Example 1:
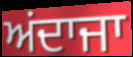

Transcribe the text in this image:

ਅਂਦਾਜਾ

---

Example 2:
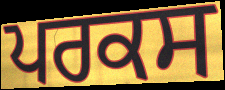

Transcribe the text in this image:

ਪਰਕਸ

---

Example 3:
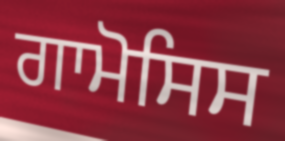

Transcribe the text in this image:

ਗਾਮੋਸਿਸ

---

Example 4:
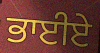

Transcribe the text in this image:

ਭਾਈਏ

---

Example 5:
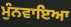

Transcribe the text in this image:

ਮੁੰਨਵਾਇਆ